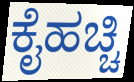
ಕೈಹಚ್ಚಿ